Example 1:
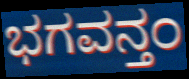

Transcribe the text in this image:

ಭಗವನ್ತಂ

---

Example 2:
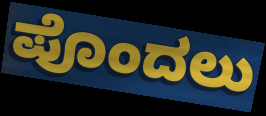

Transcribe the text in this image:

ಪೊಂದಲು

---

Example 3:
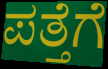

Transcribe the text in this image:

ಪತ್ತೆಗೆ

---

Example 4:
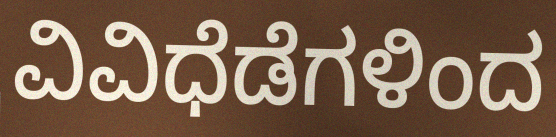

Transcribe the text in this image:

ವಿವಿಧೆಡೆಗಳಿಂದ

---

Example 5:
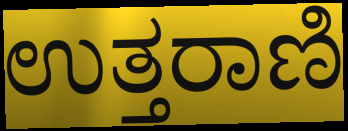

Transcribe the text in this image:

ಉತ್ತರಾಣಿ